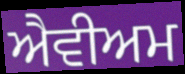
ਐਵੀਅਮ